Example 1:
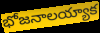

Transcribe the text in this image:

భోజనాలయ్యాక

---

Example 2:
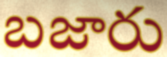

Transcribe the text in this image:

బజారు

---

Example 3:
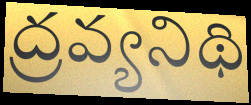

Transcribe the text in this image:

ద్రవ్యనిథి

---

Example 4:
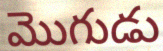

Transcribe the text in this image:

మొగుడు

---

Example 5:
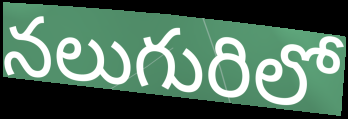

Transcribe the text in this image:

నలుగురిలో